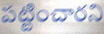
పట్టించారని